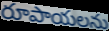
రూపాయలను